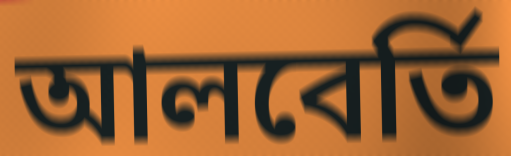
আলবের্তি